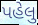
પહેલુ